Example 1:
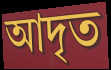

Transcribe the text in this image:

আদৃত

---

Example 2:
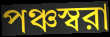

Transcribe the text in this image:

পঞ্চস্বরা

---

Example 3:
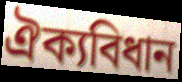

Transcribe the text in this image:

ঐক্যবিধান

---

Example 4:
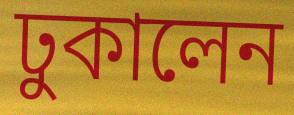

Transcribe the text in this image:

ঢুকালেন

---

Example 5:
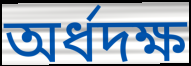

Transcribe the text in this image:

অর্ধদক্ষ